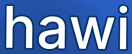
hawi